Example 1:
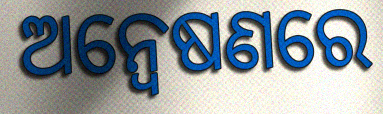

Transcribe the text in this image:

ଅନ୍ବେଷଣରେ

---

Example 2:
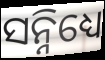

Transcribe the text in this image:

ସନ୍ନିଧ୍ୟେ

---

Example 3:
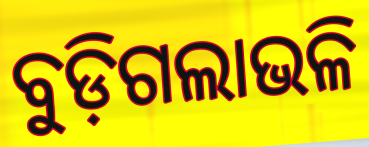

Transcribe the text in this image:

ବୁଡ଼ିଗଲାଭଳି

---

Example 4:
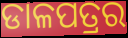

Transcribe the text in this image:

ଡାଳପତ୍ରର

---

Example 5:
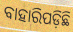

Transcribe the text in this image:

ବାହାରିପଡ଼ିଛି